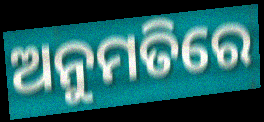
ଅନୁମତିରେ